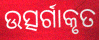
ଉତ୍ସର୍ଗାକୃତ